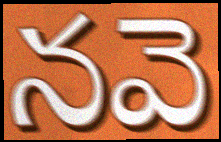
నవె